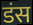
डंस